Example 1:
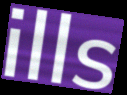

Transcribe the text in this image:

ills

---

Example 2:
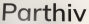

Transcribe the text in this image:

Parthiv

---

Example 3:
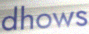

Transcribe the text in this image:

dhows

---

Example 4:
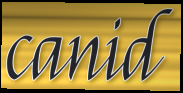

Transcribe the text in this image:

canid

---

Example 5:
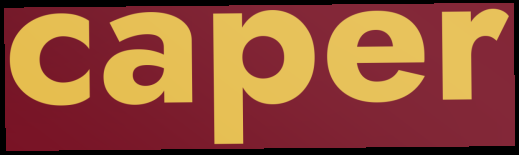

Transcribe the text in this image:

caper